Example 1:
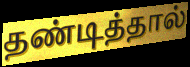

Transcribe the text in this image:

தண்டித்தால்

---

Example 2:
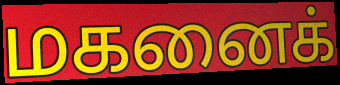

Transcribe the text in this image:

மகனைக்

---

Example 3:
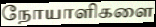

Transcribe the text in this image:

நோயாளிகளை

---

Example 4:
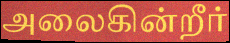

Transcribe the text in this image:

அலைகின்றீர்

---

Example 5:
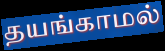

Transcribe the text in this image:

தயங்காமல்